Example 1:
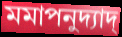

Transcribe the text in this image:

মমাপনুদ্যাদ্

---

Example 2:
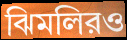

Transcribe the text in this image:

ঝিমলিরও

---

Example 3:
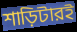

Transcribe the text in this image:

শাড়িটারই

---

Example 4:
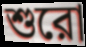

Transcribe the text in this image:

শুরো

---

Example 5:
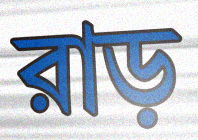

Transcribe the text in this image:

রাড়